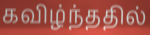
கவிழ்ந்ததில்